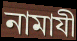
নামাযী